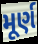
મૂર્ણ